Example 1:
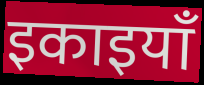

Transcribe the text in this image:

इकाइयाँ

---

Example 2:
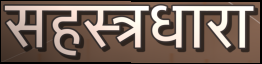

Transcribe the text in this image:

सहस्त्रधारा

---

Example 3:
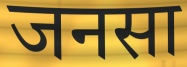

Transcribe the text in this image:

जनसा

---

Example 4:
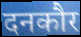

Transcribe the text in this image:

दनकौर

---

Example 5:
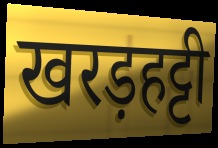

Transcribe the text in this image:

खरड़हट्टी